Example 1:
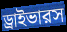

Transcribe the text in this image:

ড্রাইভারস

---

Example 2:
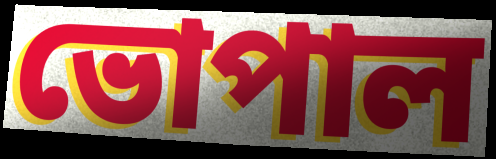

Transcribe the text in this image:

ভোপাল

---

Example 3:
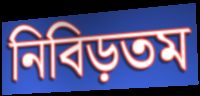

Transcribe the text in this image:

নিবিড়তম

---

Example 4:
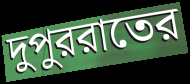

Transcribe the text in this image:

দুপুররাতের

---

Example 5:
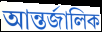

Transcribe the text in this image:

আন্তর্জালিক